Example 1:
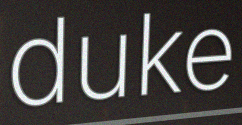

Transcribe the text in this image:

duke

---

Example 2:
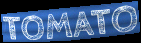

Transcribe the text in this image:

TOMATO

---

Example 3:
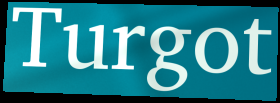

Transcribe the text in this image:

Turgot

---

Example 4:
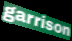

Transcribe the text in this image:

garrison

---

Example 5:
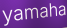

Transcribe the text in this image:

yamaha